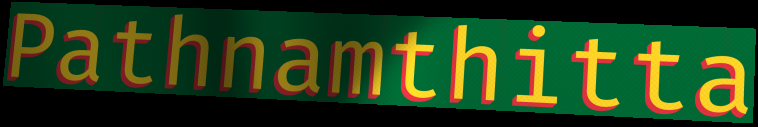
Pathnamthitta